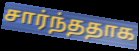
சார்ந்ததாக